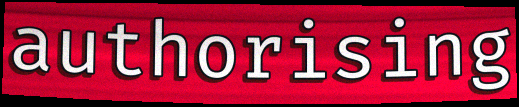
authorising